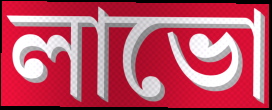
লাভো